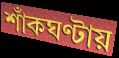
শাঁকঘণ্টায়